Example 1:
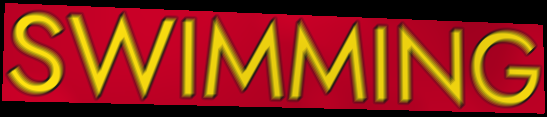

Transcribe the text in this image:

SWIMMING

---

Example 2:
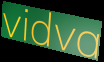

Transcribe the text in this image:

vidva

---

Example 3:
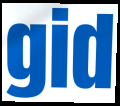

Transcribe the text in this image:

gid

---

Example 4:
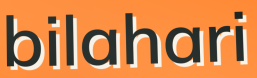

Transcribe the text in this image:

bilahari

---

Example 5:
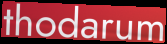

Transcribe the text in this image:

thodarum